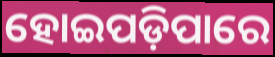
ହୋଇପଡ଼ିପାରେ